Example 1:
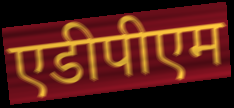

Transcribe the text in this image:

एडीपीएम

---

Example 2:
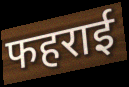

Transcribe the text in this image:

फहराई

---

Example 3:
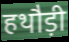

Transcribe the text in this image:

हथौड़ी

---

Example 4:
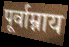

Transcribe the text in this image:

पूर्वाम्नाय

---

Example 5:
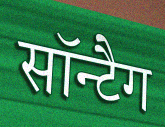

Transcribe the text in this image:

सॉन्टैग